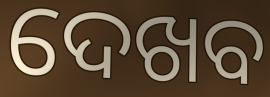
ଦେଖବ